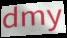
dmy